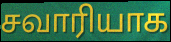
சவாரியாக